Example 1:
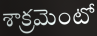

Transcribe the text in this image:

శాక్రమెంటో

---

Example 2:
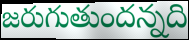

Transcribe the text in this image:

జరుగుతుందన్నది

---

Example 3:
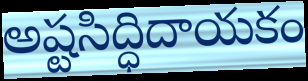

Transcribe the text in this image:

అష్టసిద్ధిదాయకం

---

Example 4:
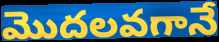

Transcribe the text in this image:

మొదలవగానే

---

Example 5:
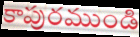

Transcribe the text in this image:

కాపురముండి